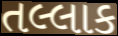
તલ્લાક